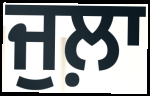
ਜੁਲ਼ਾ